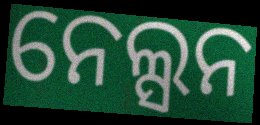
ନେଲ୍ସନ